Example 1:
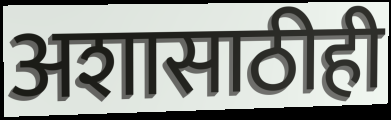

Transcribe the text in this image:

अशासाठीही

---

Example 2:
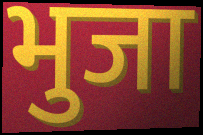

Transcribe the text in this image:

भुजा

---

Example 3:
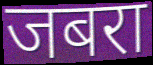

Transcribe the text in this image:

जबरा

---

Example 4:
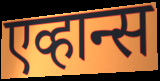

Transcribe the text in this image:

एव्हान्स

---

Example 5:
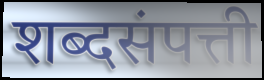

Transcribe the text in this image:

शब्दसंपत्ती